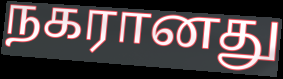
நகரானது